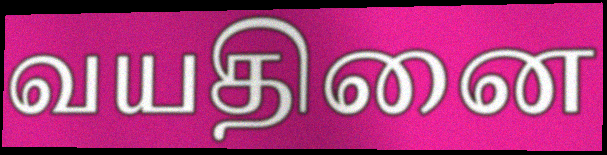
வயதினை